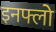
इनफ्लो